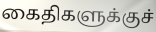
கைதிகளுக்குச்